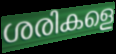
ശരികളെ